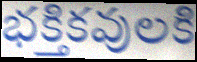
భక్తికవులకి